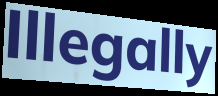
Illegally